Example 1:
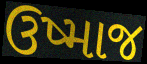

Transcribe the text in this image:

ઉષ્માજ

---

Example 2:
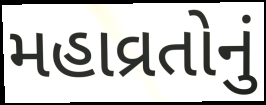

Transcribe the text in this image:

મહાવ્રતોનું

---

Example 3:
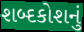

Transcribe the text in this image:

શબ્દકોશનું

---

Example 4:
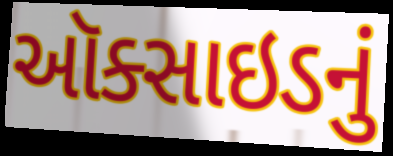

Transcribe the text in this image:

ઑક્સાઇડનું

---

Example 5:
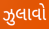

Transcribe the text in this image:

ઝુલાવો